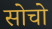
सोचो